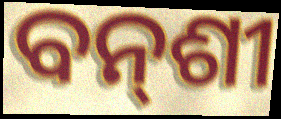
ବନ୍‌ଶୀ